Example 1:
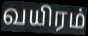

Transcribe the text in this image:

வயிரம்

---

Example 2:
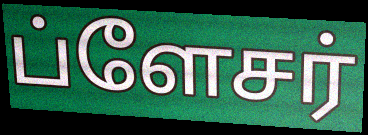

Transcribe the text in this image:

ப்ளேசர்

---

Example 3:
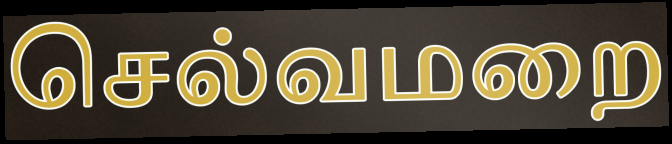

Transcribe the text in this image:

செல்வமறை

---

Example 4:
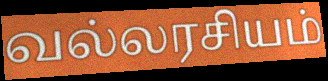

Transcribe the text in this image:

வல்லரசியம்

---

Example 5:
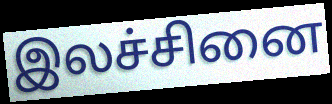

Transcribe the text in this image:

இலச்சினை